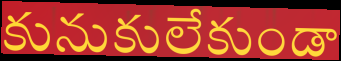
కునుకులేకుండా